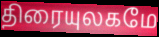
திரையுலகமே